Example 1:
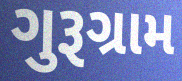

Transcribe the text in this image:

ગુરૂગ્રામ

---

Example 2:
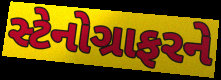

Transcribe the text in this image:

સ્ટેનોગ્રાફરને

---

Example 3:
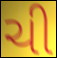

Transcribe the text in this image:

ચી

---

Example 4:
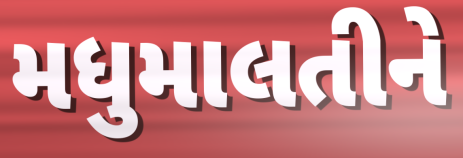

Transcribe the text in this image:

મધુમાલતીને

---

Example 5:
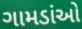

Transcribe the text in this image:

ગામડાંઓ